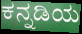
ಕನ್ನಡಿಯ